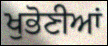
ਖੁਭੋਣੀਆਂ